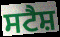
ਸਟੈਸ਼